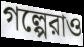
গল্পেরাও